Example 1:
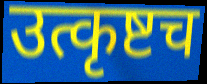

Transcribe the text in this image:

उत्कृष्टच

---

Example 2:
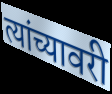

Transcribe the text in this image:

त्यांच्यावरी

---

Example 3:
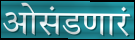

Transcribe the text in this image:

ओसंडणारं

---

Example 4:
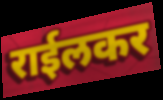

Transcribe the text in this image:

राईलकर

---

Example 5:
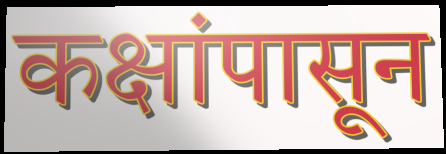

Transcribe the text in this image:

कक्षांपासून